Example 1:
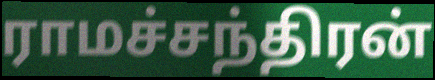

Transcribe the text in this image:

ராமச்சந்திரன்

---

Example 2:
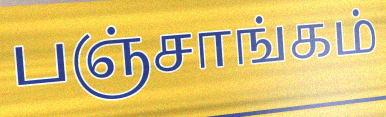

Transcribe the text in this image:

பஞ்சாங்கம்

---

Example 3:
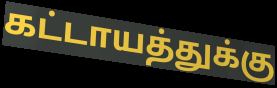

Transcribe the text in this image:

கட்டாயத்துக்கு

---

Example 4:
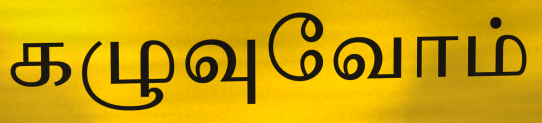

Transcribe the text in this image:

கழுவுவோம்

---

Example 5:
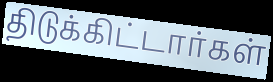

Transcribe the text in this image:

திடுக்கிட்டார்கள்